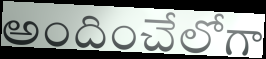
అందించేలోగా